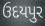
ઉદયપુર